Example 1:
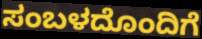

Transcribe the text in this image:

ಸಂಬಳದೊಂದಿಗೆ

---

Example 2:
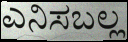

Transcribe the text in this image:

ಎನಿಸಬಲ್ಲ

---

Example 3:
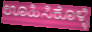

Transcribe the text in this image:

ಊಹಿಸಿಕೊಳ್ಳಿ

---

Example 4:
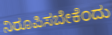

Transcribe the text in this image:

ನಿರೂಪಿಸಬೇಕೆಂದು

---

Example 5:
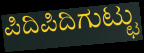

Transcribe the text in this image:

ಪಿದಿಪಿದಿಗುಟ್ಟು